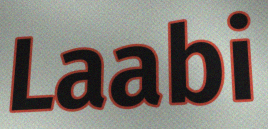
Laabi